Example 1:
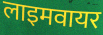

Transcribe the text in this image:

लाइमवायर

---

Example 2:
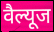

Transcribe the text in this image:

वैल्यूज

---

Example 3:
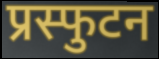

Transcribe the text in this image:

प्रस्फुटन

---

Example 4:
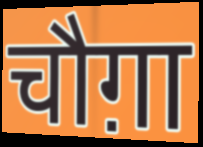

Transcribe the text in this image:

चौग़ा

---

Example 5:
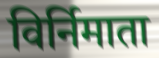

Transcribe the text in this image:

विर्निमाता